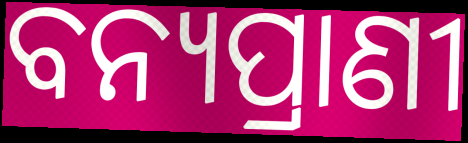
ବନ୍ୟପ୍ରାଣୀ